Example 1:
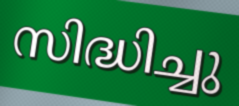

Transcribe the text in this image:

സിദ്ധിച്ചു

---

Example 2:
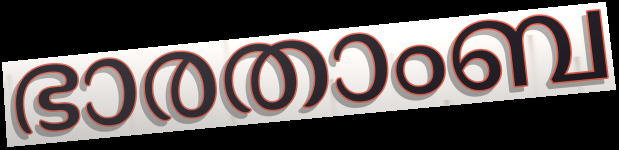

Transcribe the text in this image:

ഭാരതാംബ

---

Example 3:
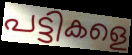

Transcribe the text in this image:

പട്ടികളെ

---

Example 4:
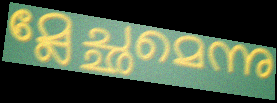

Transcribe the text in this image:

മ്ലേച്ഛമെന്നു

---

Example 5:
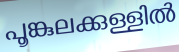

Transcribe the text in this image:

പൂങ്കുലക്കുള്ളിൽ